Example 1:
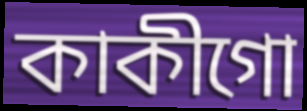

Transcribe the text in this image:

কাকীগো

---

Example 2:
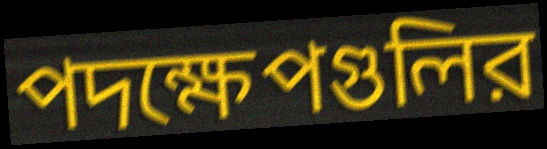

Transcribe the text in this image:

পদক্ষেপগুলির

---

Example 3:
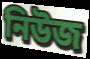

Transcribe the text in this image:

নিউজ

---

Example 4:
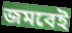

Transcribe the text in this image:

জমবেই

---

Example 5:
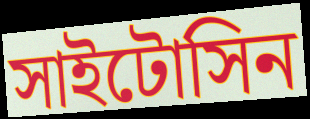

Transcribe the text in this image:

সাইটোসিন